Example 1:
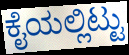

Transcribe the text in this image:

ಕೈಯಲ್ಲಿಟ್ಟು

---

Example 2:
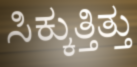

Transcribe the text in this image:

ಸಿಕ್ಕುತ್ತಿತ್ತು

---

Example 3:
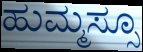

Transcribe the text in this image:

ಹುಮ್ಮಸ್ಸೂ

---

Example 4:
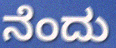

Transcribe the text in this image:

ನೆಂದು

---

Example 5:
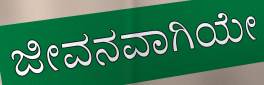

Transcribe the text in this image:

ಜೀವನವಾಗಿಯೇ